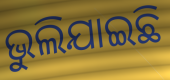
ଭୁଲିଯାଇଛି